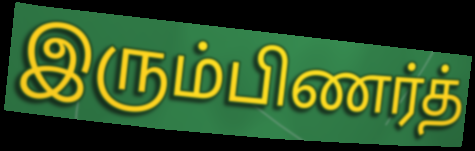
இரும்பிணர்த்